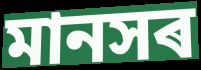
মানসৰ